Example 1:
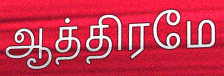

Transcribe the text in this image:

ஆத்திரமே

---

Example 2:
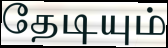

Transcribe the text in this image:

தேடியும்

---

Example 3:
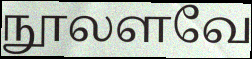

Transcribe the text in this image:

நூலளவே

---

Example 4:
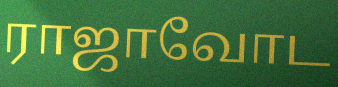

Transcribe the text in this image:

ராஜாவோட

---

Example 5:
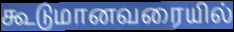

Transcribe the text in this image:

கூடுமானவரையில்